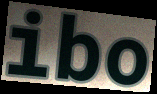
ibo